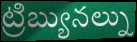
ట్రిబ్యునల్ను